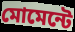
মোমেন্টে